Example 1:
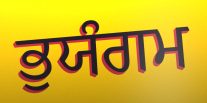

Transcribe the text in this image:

ਭੁਯੰਗਮ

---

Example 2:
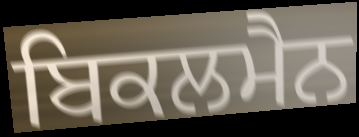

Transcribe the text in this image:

ਬਿਕਲਮੈਨ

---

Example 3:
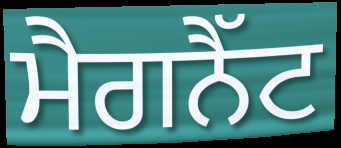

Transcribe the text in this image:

ਮੈਗਨੈੱਟ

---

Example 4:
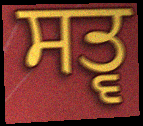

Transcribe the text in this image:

ਸਤ੍ਵ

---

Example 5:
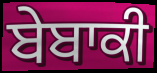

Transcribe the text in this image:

ਬੇਬਾਕੀ